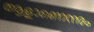
ആളാണെന്നും